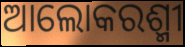
ଆଲୋକରଶ୍ମୀ